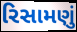
રિસામણું